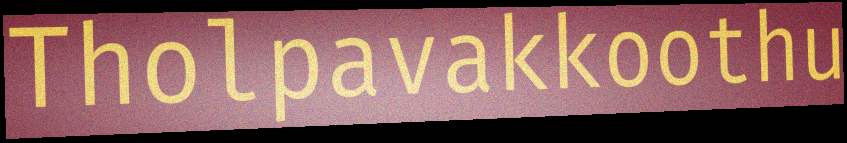
Tholpavakkoothu